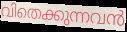
വിതെക്കുന്നവൻ